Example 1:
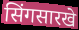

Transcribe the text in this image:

सिंगसारखे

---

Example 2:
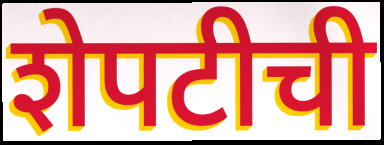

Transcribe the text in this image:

शेपटीची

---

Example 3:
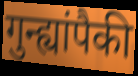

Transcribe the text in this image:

गुन्ह्यांपैकी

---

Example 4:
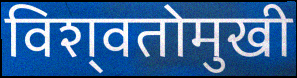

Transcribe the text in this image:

विश्वतोमुखी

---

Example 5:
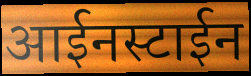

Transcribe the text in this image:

आईनस्टाईन